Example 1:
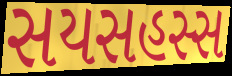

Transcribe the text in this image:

સયસહસ્સ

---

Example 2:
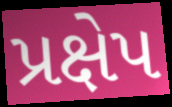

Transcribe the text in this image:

પ્રક્ષેપ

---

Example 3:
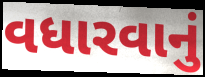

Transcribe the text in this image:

વધારવાનું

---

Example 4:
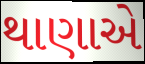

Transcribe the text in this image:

થાણાએ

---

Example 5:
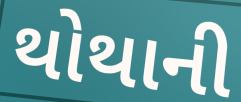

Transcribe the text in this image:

થોથાની